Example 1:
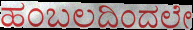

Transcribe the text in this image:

ಹಂಬಲದಿಂದಲೇ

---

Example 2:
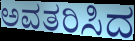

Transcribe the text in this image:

ಅವತರಿಸಿದ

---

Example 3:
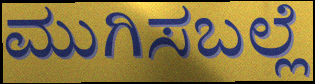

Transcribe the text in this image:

ಮುಗಿಸಬಲ್ಲೆ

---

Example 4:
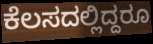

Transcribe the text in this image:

ಕೆಲಸದಲ್ಲಿದ್ದರೂ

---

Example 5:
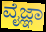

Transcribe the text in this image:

ವೈಜ್ಞಾ